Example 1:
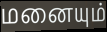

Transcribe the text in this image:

மனையும்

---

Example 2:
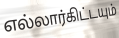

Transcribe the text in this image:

எல்லார்கிட்டயும்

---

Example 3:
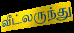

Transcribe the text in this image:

வீட்லருந்து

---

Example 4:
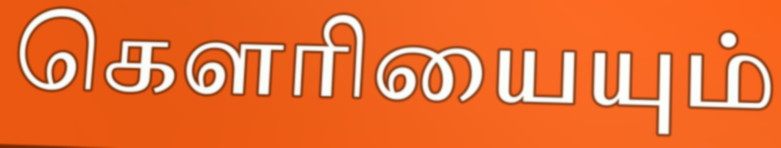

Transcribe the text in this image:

கௌரியையும்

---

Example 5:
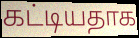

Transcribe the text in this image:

கட்டியதாக